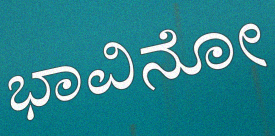
ಭಾವಿನೋ